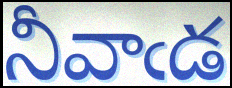
నీవాఁడ